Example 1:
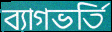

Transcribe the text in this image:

ব্যাগভর্তি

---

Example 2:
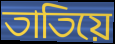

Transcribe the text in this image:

তাতিয়ে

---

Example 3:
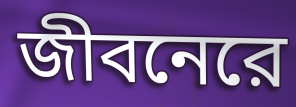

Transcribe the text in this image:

জীবনেরে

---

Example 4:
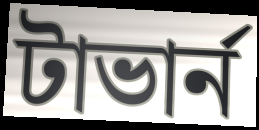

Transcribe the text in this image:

টাভার্ন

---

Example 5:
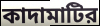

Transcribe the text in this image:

কাদামাটির